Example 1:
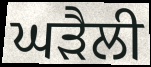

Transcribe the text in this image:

ਘੜੈਲੀ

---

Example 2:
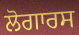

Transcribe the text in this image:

ਲੋਗਾਰਸ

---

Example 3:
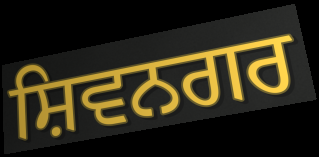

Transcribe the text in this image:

ਸ਼ਿਵਨਗਰ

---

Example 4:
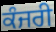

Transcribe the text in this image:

ਕੰਜਰੀ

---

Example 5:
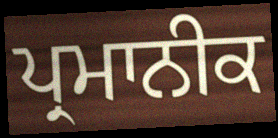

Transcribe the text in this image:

ਪ੍ਰਮਾਨੀਕ